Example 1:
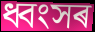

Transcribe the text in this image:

ধ্বংসৰ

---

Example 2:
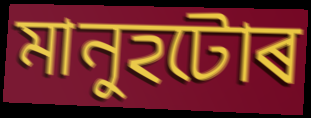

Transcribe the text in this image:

মানুহটোৰ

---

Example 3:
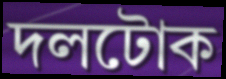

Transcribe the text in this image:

দলটোক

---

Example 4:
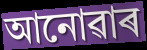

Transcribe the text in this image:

আনোৱাৰ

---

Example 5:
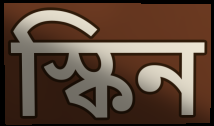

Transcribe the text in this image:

স্কিন